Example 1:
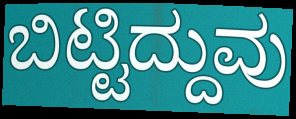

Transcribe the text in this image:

ಬಿಟ್ಟಿದ್ದುವು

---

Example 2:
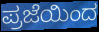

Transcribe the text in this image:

ಪ್ರಜೆಯಿಂದ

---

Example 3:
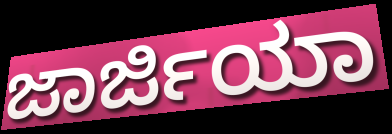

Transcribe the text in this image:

ಜಾರ್ಜಿಯಾ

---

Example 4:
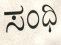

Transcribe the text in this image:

ಸಂಧಿ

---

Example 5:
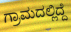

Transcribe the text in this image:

ಗ್ರಾಮದಲ್ಲಿದ್ದೆ